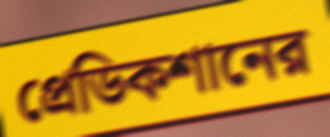
প্রেডিকশানের